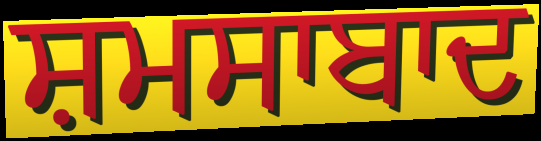
ਸ਼ਮਸਾਬਾਦ